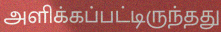
அளிக்கப்பட்டிருந்தது